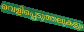
വെളിപ്പെടുത്തലുകളും